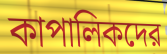
কাপালিকদের